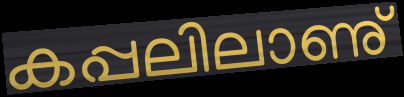
കപ്പലിലാണു്